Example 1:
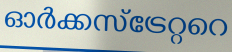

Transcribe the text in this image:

ഓർക്കസ്ട്രേറ്ററെ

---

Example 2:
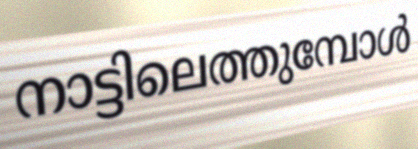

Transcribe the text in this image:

നാട്ടിലെത്തുമ്പോൾ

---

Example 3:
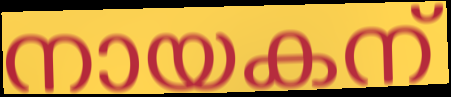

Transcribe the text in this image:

നായകന്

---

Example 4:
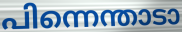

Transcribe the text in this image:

പിന്നെന്താടാ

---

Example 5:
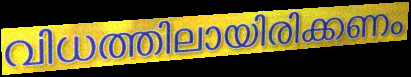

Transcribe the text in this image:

വിധത്തിലായിരിക്കണം